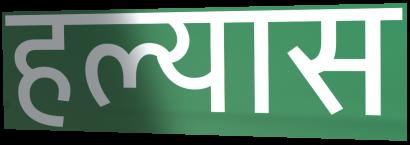
हल्यास